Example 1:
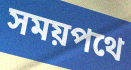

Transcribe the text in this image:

সময়পথে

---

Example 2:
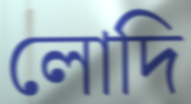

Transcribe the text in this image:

লোদি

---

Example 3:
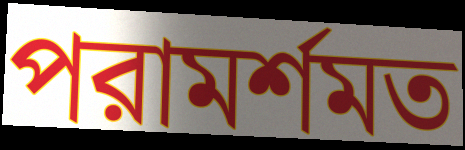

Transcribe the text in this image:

পরামর্শমত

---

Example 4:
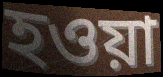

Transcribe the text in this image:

হওয়া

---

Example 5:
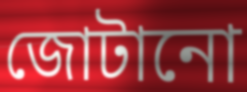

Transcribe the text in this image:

জোটানো